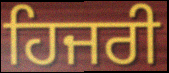
ਹਿਜਰੀ